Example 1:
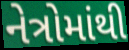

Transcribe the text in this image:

નેત્રોમાંથી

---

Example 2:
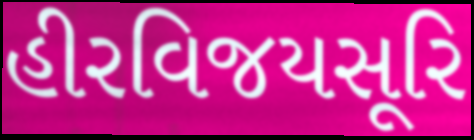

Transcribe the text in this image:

હીરવિજયસૂરિ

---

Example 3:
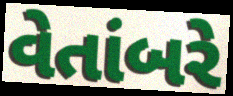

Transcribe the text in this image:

વેતાંબરે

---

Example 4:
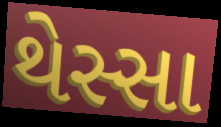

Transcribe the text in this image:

થેસ્સા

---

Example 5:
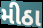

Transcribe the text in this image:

મીઠા